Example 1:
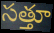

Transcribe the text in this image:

సత్తూ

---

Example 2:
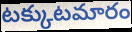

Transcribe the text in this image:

టక్కుటమారం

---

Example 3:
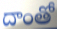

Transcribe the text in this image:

దాంతో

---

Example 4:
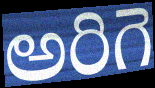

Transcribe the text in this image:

అరిగె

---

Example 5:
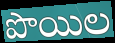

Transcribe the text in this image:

పొయిల